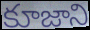
కూజాని